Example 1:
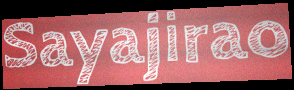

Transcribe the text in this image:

Sayajirao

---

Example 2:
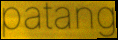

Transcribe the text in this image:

patang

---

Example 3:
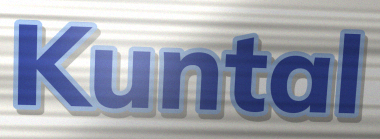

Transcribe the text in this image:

Kuntal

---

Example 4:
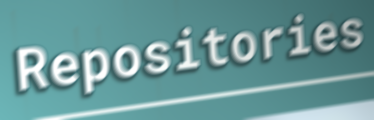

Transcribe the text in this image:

Repositories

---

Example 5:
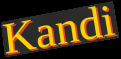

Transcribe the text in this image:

Kandi